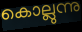
കൊല്ലുന്നു